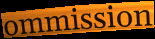
ommission